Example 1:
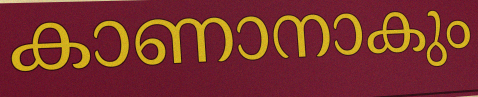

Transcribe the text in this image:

കാണാനാകും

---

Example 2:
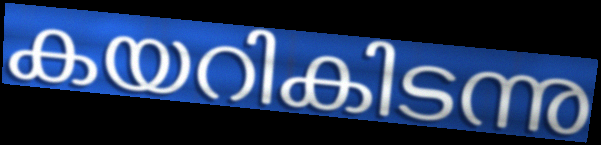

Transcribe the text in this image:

കയറികിടന്നു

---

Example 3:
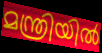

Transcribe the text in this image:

മന്ത്രിയിൽ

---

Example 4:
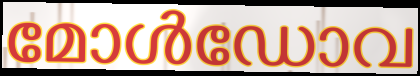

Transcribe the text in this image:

മോൾഡോവ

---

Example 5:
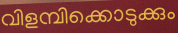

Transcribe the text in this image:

വിളമ്പിക്കൊടുക്കും